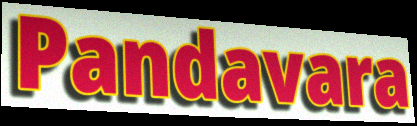
Pandavara